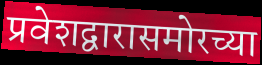
प्रवेशद्वारासमोरच्या